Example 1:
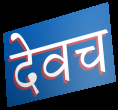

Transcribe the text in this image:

देवच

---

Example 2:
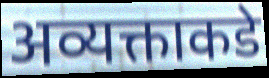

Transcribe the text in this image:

अव्यक्ताकडे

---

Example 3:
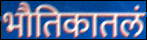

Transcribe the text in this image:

भौतिकातलं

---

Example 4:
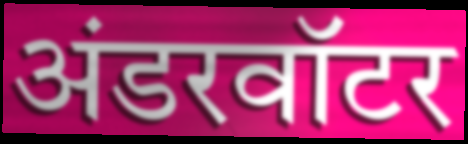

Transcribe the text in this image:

अंडरवॉटर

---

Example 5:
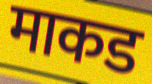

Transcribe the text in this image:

माकड